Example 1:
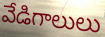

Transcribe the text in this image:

వేడిగాలులు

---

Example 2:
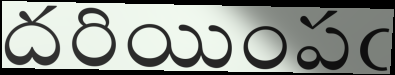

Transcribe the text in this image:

దరియింపఁ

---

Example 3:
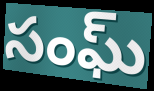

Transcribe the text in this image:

సంఘ్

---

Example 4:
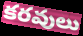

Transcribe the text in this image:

కరవులు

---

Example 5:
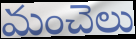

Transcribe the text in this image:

మంచెలు